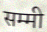
सम्मी